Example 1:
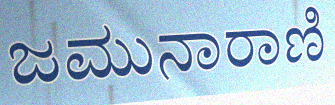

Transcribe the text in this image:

ಜಮುನಾರಾಣಿ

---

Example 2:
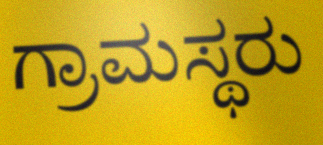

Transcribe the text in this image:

ಗ್ರಾಮಸ್ಥರು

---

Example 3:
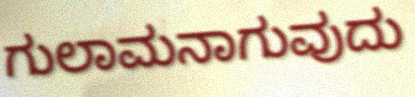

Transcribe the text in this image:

ಗುಲಾಮನಾಗುವುದು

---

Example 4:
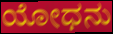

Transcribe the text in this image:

ಯೋಧನು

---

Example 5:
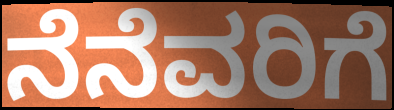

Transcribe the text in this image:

ನೆನೆವರಿಗೆ